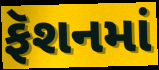
ફૅશનમાં